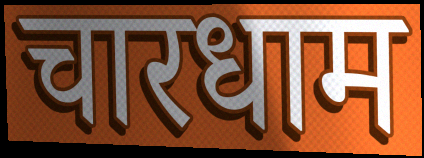
चारधाम